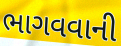
ભાગવવાની